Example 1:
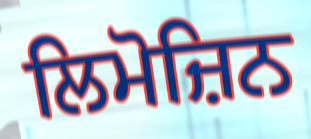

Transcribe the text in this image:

ਲਿਮੋਜ਼ਿਨ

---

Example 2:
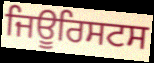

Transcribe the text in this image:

ਜਿਊਰਿਸਟਸ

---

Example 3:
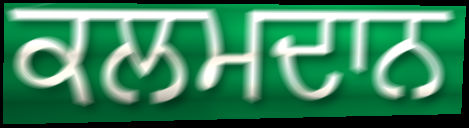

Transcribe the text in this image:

ਕਲਮਦਾਨ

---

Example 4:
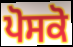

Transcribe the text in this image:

ਪੋਸਕੋ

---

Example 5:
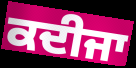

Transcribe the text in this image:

ਕਦੀਜਾ